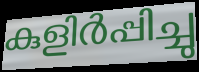
കുളിർപ്പിച്ചു